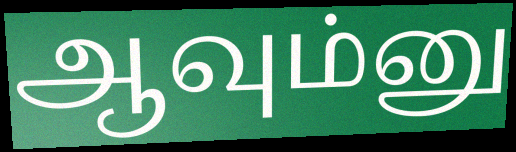
ஆவும்னு